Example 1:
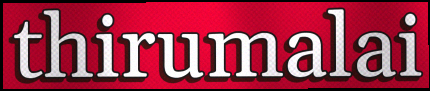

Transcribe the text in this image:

thirumalai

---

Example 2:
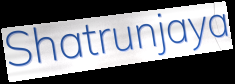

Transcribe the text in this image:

Shatrunjaya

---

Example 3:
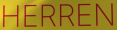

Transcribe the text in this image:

HERREN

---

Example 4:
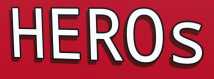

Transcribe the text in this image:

HEROs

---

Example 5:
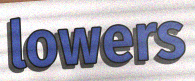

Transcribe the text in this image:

lowers